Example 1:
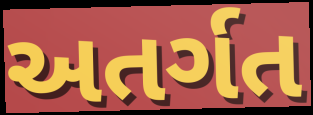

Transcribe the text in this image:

અતર્ગત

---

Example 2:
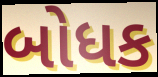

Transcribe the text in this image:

બોધક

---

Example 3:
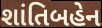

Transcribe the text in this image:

શાંતિબહેન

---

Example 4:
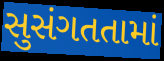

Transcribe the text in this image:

સુસંગતતામાં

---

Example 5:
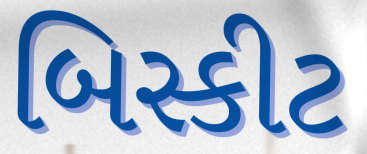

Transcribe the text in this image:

બિસ્કીટ